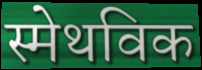
स्मेथविक